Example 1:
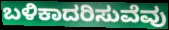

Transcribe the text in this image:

ಬಳಿಕಾದರಿಸುವೆವು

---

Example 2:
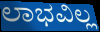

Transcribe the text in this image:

ಲಾಭವಿಲ್ಲ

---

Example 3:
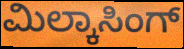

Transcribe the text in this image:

ಮಿಲ್ಕಾಸಿಂಗ್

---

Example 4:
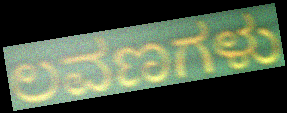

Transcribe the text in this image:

ಲವಣಗಳು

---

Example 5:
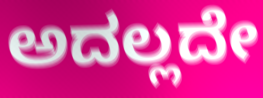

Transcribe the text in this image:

ಅದಲ್ಲದೇ